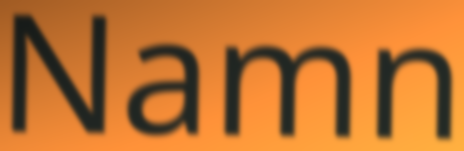
Namn